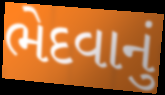
ભેદવાનું